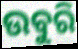
ଉବୁରି